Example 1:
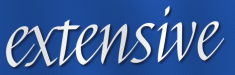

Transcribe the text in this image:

extensive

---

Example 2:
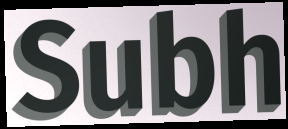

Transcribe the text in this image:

Subh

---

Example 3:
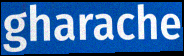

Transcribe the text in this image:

gharache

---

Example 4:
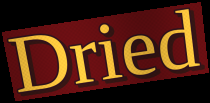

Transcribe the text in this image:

Dried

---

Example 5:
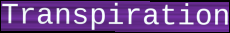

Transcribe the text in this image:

Transpiration